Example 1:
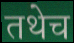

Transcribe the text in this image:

तथेच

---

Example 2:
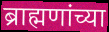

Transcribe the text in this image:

ब्राह्मणांच्या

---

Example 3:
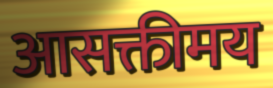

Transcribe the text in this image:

आसक्तीमय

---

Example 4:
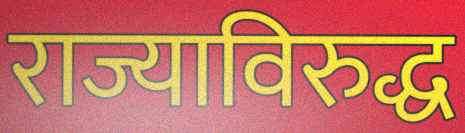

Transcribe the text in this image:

राज्याविरुद्ध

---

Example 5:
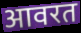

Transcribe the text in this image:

आवरत